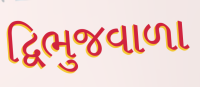
દ્વિભુજવાળા